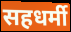
सहधर्मी